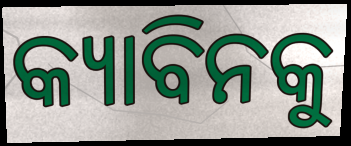
କ୍ୟାବିନକୁ